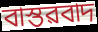
বাস্তৱবাদ